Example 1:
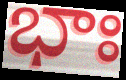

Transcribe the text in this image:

భాః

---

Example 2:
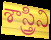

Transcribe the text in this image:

శాస్త్రిని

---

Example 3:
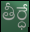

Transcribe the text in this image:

తీర్ధే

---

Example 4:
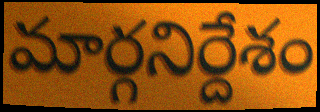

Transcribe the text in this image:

మార్గనిర్దేశం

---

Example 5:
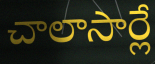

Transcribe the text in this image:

చాలాసార్లే